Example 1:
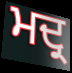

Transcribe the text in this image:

ਮਦ੍ਰ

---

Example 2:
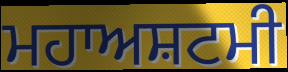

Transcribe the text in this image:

ਮਹਾਅਸ਼ਟਮੀ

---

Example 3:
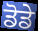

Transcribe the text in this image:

ਡੋਡੇ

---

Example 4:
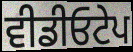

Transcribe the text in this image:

ਵੀਡੀਓਟੇਪ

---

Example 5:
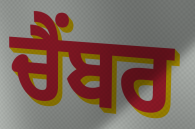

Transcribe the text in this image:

ਚੈਂਬਰ